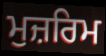
ਮੁਜ਼ਰਿਮ